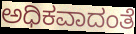
ಅಧಿಕವಾದಂತೆ